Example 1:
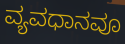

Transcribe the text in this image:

ವ್ಯವಧಾನವೂ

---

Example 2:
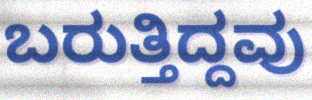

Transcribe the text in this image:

ಬರುತ್ತಿದ್ದವು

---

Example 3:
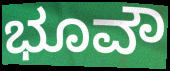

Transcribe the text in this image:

ಭೂವೌ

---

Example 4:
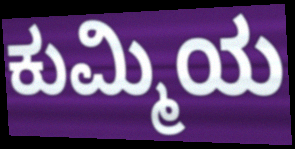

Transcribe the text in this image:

ಕುಮ್ಮಿಯ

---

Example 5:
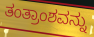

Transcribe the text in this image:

ತಂತ್ರಾಂಶವನ್ನು